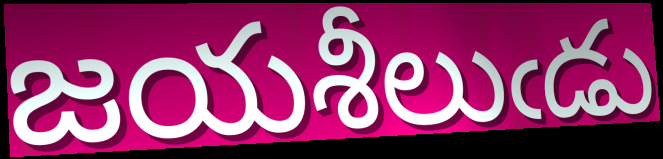
జయశీలుఁడు